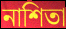
নাশিতা